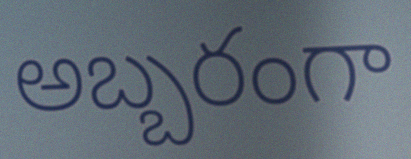
అబ్బరంగా